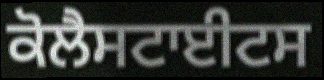
ਕੋਲੈਸਟਾਈਟਸ